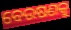
ବେଉଷଣକୁ